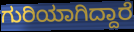
ಗುರಿಯಾಗಿದ್ದಾರೆ